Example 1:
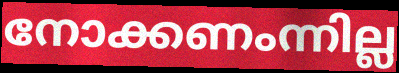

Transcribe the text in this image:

നോക്കണംന്നില്ല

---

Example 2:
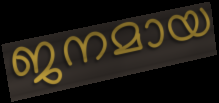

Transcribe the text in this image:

ജനമായ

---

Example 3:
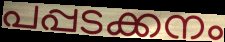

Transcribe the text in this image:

പപ്പടക്കനം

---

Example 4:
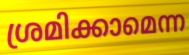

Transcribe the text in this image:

ശ്രമിക്കാമെന്ന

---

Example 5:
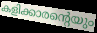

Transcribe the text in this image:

കളിക്കാരന്റെയും